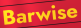
Barwise